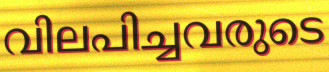
വിലപിച്ചവരുടെ